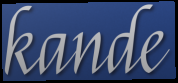
kande